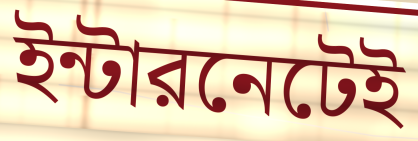
ইন্টারনেটেই